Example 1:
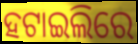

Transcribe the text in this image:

ହଟାଇଲିରେ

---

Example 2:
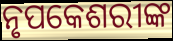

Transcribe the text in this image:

ନୃପକେଶରୀଙ୍କ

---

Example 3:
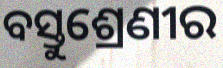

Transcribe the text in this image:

ବସ୍ତୁଶ୍ରେଣୀର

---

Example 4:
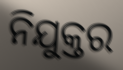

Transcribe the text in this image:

ନିଯୁକ୍ତର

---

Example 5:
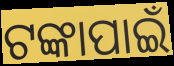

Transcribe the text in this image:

ଟଙ୍କାପାଇଁ